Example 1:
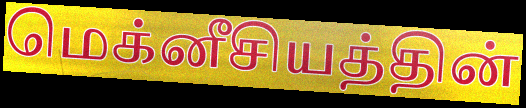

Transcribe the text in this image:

மெக்னீசியத்தின்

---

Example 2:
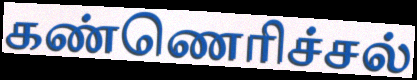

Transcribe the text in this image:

கண்ணெரிச்சல்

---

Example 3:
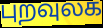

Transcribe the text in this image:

புறவுலக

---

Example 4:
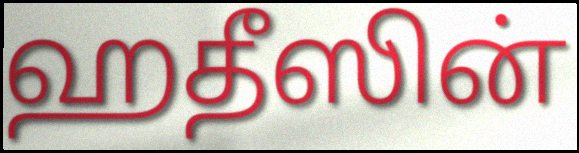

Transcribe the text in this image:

ஹதீஸின்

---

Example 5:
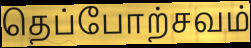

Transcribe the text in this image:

தெப்போற்சவம்